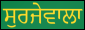
ਸੁਰਜੇਵਾਲਾ